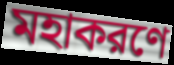
মহাকরণে